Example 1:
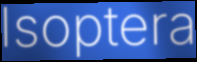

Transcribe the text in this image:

Isoptera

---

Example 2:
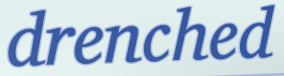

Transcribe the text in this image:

drenched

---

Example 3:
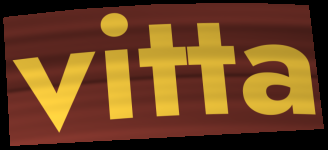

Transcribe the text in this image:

vitta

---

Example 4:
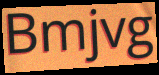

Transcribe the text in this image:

Bmjvg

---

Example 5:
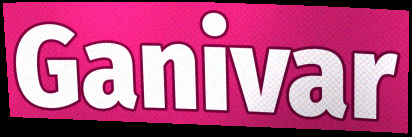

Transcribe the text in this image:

Ganivar